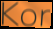
Kor